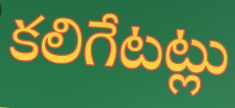
కలిగేటట్లు